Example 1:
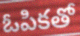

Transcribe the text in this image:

ఓపికతో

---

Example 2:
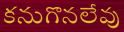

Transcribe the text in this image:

కనుగొనలేవు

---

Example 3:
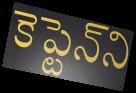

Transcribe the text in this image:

కెప్టెన్‌ని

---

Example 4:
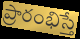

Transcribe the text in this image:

ప్రారంభిస్తే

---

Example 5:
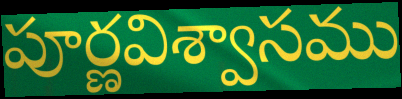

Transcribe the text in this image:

పూర్ణవిశ్వాసము